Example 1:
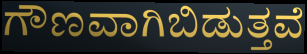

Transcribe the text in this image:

ಗೌಣವಾಗಿಬಿಡುತ್ತವೆ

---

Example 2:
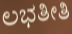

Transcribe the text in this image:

ಲಭತೀತಿ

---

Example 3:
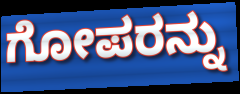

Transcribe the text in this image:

ಗೋಪರನ್ನು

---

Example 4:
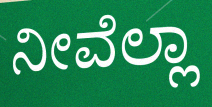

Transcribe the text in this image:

ನೀವೆಲ್ಲಾ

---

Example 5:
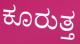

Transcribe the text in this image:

ಕೂರುತ್ತ